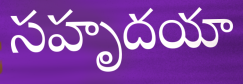
సహృదయా